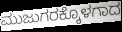
ಮುಜುಗರಕ್ಕೊಳಗಾದ